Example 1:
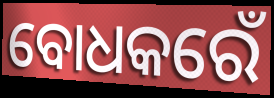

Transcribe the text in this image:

ବୋଧକରେଁ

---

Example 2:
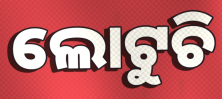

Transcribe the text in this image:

ଲୋଟୁଚି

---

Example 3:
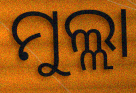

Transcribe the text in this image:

ମୁଲ୍ଲା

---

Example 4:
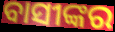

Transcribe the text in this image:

ବାସୀଙ୍କର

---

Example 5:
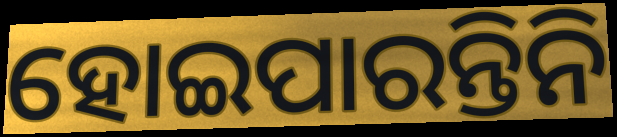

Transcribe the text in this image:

ହୋଇପାରନ୍ତିନି